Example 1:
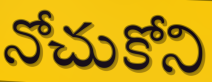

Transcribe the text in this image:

నోచుకోని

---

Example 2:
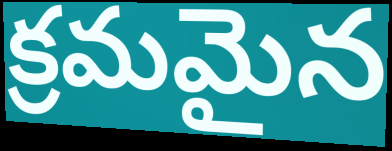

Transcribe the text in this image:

క్రమమైన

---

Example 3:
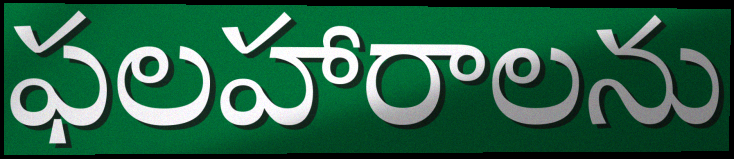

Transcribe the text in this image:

ఫలహారాలను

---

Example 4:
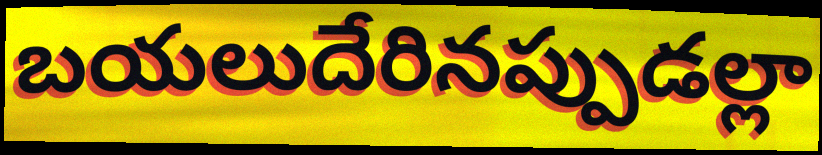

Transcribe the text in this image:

బయలుదేరినప్పుడల్లా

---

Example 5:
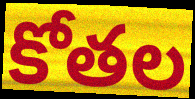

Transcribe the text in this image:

కోతల